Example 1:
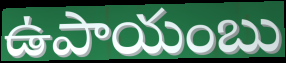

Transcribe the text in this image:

ఉపాయంబు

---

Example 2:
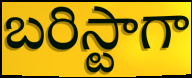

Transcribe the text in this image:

బరిస్టాగా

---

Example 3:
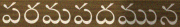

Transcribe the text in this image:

పరమపదమున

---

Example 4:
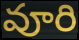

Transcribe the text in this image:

వూరి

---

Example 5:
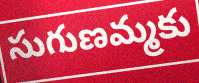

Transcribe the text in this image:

సుగుణమ్మకు